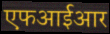
एफआईआर